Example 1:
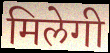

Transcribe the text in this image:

मिलेगी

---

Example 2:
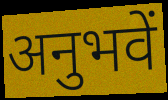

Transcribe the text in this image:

अनुभवें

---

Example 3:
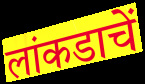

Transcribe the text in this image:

लांकडाचें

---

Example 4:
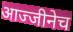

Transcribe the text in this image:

आज्जीनेच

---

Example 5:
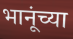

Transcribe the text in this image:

भानूंच्या